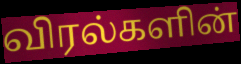
விரல்களின்